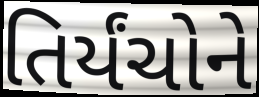
તિર્યંચોને